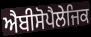
ਐਬੀਸੋਪੈਲੇਜਿਕ